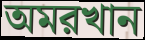
অমরখান